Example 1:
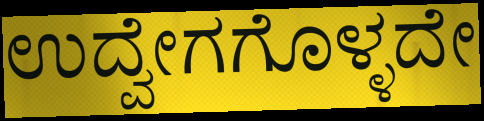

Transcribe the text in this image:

ಉದ್ವೇಗಗೊಳ್ಳದೇ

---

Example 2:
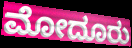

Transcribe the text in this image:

ಮೋದೂರು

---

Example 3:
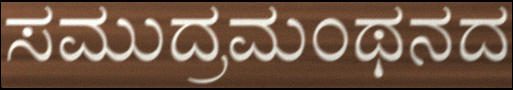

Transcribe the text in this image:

ಸಮುದ್ರಮಂಥನದ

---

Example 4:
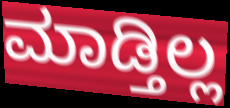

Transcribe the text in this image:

ಮಾಡ್ತಿಲ್ಲ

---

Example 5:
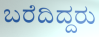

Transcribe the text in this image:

ಬರೆದಿದ್ದರು